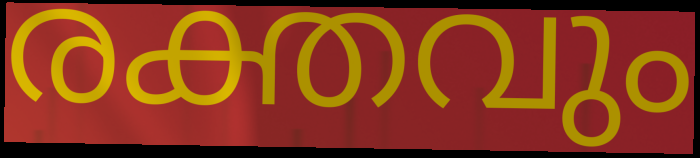
രക്തവും